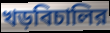
খড়বিচালির